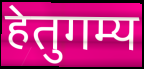
हेतुगम्य